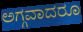
ಅಗ್ಗವಾದರೂ